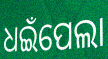
ଧଇଁପେଲା